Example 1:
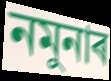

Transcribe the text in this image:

নমুনাৰ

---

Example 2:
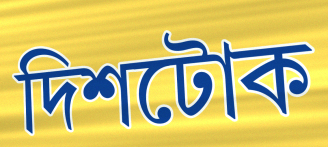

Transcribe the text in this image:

দিশটোক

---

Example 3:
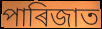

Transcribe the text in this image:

পাৰিজাত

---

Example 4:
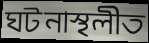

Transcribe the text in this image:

ঘটনাস্থলীত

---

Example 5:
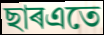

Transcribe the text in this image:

ছাৰএতে